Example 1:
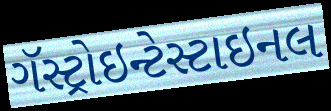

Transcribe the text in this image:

ગૅસ્ટ્રોઇન્ટેસ્ટાઇનલ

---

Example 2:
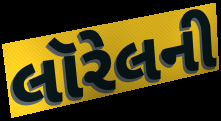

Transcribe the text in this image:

લૉરેલની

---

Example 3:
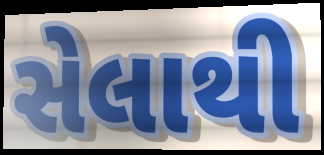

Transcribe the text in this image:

સેલાથી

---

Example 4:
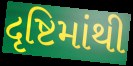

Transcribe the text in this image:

દૃષ્ટિમાંથી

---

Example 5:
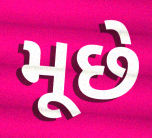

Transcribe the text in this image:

મૂછે